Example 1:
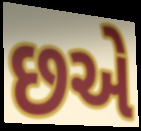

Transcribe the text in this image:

છએ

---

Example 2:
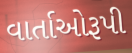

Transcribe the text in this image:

વાર્તાઓરૂપી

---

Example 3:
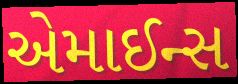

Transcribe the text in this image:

એમાઈન્સ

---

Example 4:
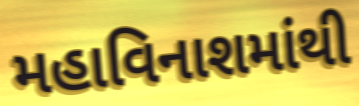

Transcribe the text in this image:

મહાવિનાશમાંથી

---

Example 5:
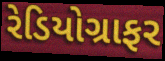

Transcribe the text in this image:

રેડિયોગ્રાફર